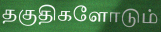
தகுதிகளோடும்